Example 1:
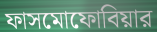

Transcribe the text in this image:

ফাসমোফোবিয়ার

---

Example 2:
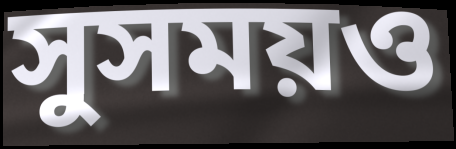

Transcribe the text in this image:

সুসময়ও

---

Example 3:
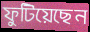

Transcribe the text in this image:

ফুটিয়েছেন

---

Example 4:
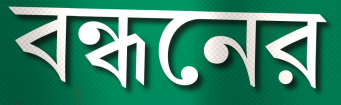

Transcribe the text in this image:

বন্ধনের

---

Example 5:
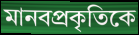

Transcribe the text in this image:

মানবপ্রকৃতিকে